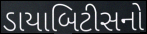
ડાયાબિટીસનો